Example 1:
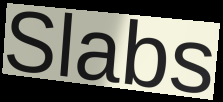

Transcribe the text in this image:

Slabs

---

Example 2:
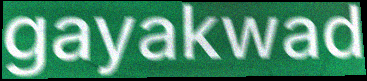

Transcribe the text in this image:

gayakwad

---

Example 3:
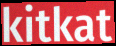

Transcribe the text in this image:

kitkat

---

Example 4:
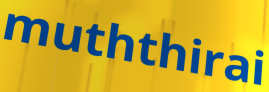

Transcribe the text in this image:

muththirai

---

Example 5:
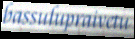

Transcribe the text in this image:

bassulupraivetu